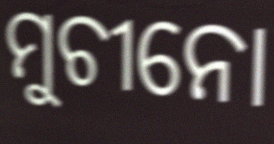
ମୁଚୀନୋ